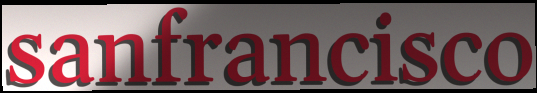
sanfrancisco